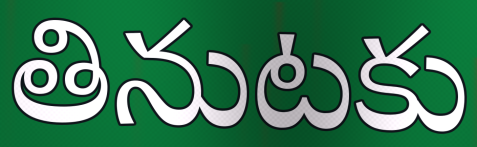
తినుటకు